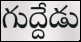
గుద్దేడు